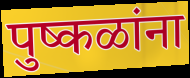
पुष्कळांना